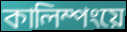
কালিম্পংয়ে